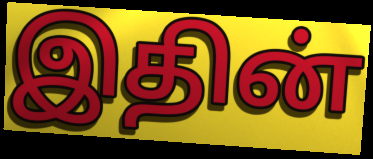
இதின்